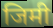
जिमी